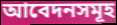
আবেদনসমূহ